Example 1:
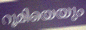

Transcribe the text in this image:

റൂമിയെയും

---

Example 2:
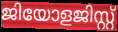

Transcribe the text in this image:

ജിയോളജിസ്റ്റ്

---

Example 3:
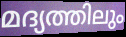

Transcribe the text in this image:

മദ്യത്തിലും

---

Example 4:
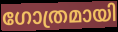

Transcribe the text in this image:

ഗോത്രമായി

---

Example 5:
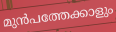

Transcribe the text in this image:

മുൻപത്തേക്കാളും